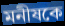
মনীষকে